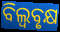
ବିଲ୍ୱବୃକ୍ଷ